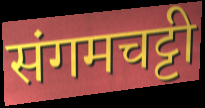
संगमचट्टी